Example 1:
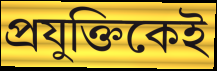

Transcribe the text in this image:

প্রযুক্তিকেই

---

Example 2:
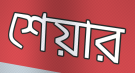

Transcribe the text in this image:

শেয়ার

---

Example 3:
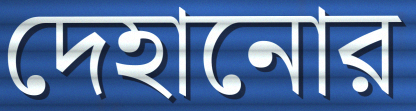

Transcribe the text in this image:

দেহানোর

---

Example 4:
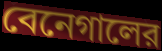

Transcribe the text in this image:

বেনেগালের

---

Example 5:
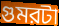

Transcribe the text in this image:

গুমরটা